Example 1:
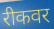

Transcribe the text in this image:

रीकवर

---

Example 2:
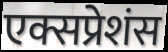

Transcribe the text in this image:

एक्सप्रेशंस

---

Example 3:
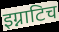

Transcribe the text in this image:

इग्नाटिच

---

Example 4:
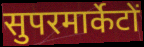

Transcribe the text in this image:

सुपरमार्केटों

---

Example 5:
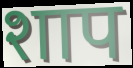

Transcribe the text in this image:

शाप